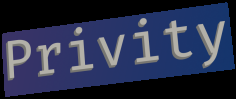
Privity